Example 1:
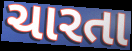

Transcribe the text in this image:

ચારતા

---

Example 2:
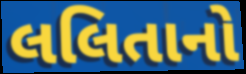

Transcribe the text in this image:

લલિતાનો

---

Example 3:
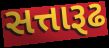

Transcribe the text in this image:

સત્તારૂઢ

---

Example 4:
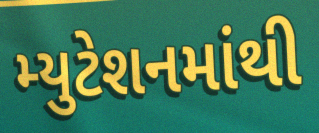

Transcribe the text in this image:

મ્યુટેશનમાંથી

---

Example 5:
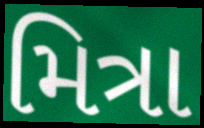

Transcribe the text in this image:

મિત્રા